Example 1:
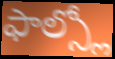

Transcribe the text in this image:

ఫాల్స్లో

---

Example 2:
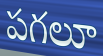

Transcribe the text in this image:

పగలూ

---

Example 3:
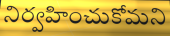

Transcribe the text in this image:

నిర్వహించుకోమని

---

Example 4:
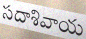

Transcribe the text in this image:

సదాశివాయ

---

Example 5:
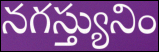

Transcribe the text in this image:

నగస్త్యునిం